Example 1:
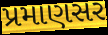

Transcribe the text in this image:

પ્રમાણસર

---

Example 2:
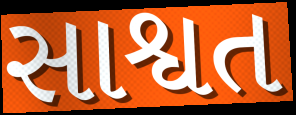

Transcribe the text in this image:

સાશ્વત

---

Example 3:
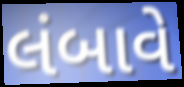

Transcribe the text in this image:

લંબાવે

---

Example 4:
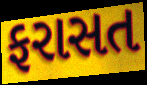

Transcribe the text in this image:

ફરાસત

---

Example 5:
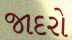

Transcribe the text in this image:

જાદરો